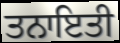
ਤਨਾਇਤੀ